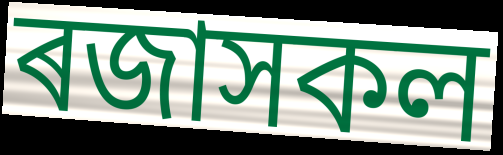
ৰজাসকল